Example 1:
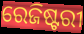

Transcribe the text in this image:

ରେଜିଷ୍ଟରୀ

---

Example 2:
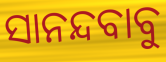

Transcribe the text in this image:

ସାନନ୍ଦବାବୁ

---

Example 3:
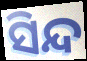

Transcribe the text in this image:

ସିନ୍ଦ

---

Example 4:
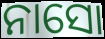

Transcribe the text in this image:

ନାସୋ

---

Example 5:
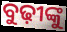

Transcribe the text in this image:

ବୁଢ଼ୀଙ୍କୁ